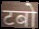
टबो